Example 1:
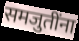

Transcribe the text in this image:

समजुतींना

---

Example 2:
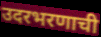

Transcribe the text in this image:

उदरभरणाची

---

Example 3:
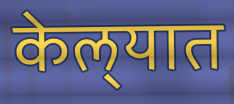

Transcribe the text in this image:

केल्यात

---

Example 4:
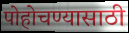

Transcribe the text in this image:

पोहोचण्यासाठी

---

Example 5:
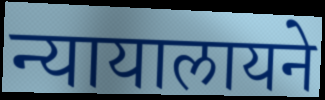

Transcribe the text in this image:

न्यायालायने